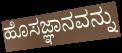
ಹೊಸಜ್ಞಾನವನ್ನು